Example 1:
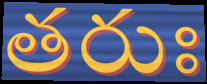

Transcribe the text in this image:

తరుః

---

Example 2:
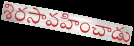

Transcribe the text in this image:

శిరసావహించాడు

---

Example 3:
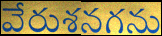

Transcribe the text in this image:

వేరుశనగను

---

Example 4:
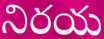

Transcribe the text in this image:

నిరయ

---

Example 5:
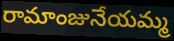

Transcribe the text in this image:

రామాంజునేయమ్మ